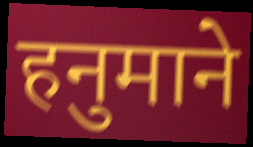
हनुमाने